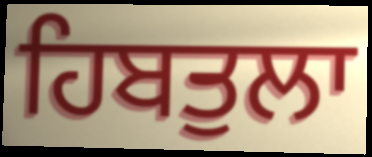
ਹਿਬਤੁਲਾ